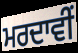
ਮਰਦਾਵੀਂ